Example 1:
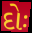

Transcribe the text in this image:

દોઃ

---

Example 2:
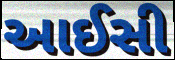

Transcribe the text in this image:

આઈસી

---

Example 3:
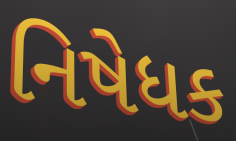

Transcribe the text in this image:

નિષેધક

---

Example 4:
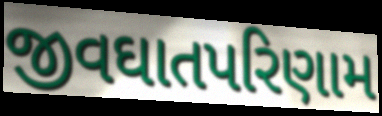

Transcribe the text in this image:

જીવઘાતપરિણામ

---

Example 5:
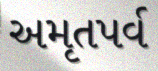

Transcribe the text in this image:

અમૃતપર્વ